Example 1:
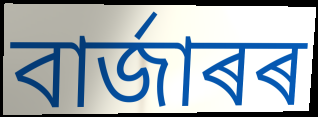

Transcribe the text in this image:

বাৰ্জাৰৰ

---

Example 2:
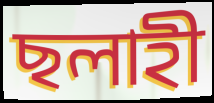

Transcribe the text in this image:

ছলাহী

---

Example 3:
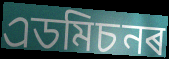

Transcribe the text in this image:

এডমিচনৰ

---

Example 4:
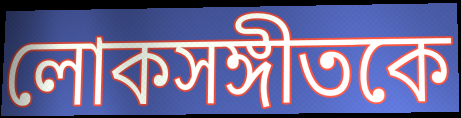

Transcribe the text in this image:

লোকসঙ্গীতকে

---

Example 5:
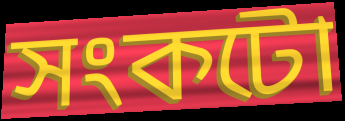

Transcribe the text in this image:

সংকটো